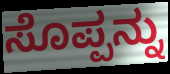
ಸೊಪ್ಪನ್ನು